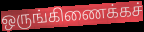
ஒருங்கிணைக்கச்